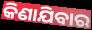
କିଣାଯିବାର